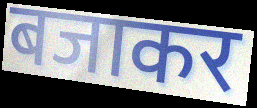
बजाकर